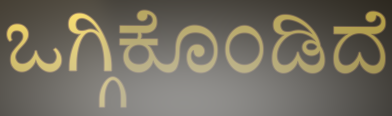
ಒಗ್ಗಿಕೊಂಡಿದೆ